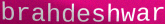
brahdeshwar